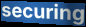
securing